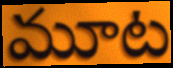
మూట